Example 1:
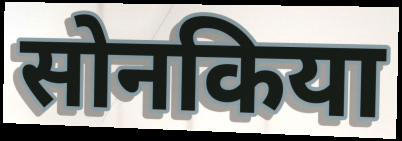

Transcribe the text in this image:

सोनकिया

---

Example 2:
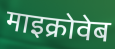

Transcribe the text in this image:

माइक्रोवेब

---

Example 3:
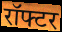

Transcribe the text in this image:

रॉफ्टर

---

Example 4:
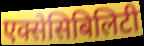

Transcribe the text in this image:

एक्सेसिबिलिटी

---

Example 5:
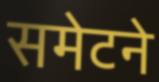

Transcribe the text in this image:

समेटने